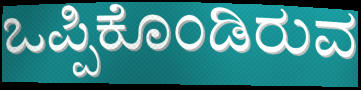
ಒಪ್ಪಿಕೊಂಡಿರುವ